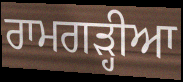
ਰਾਮਗੜ੍ਹੀਆ